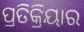
ପ୍ରତିକ୍ରିୟାର